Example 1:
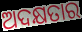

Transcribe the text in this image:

ଅଦକ୍ଷତାର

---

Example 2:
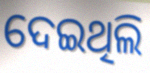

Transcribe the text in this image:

ଦେଇଥିଲି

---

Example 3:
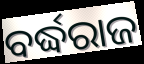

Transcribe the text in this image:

ବର୍ଦ୍ଧରାଜ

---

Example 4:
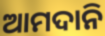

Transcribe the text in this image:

ଆମଦାନି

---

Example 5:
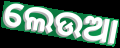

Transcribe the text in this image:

ଲେଉଆ